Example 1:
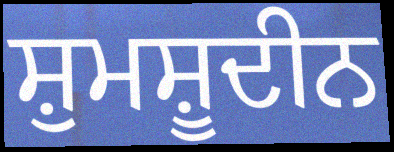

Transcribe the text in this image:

ਸ਼ੁਮਸ਼ੂਦੀਨ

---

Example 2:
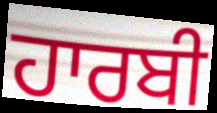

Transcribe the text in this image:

ਹਾਰਬੀ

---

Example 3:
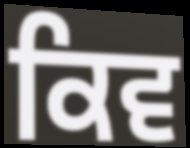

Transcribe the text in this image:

ਕਿਵ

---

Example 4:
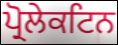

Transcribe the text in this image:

ਪ੍ਰੋਲੇਕਟਿਨ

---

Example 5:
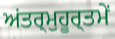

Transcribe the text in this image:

ਅਂਤਰ੍ਮੁਹੂਰ੍ਤਮੇਂ